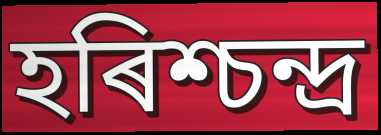
হৰিশ্চন্দ্ৰ